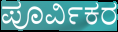
ಪೂರ್ವಿಕರ